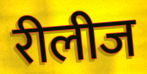
रीलीज